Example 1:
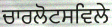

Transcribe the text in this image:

ਚਾਰਲੋਟਸਵਿਲੇ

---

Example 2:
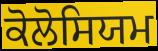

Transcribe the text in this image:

ਕੋਲੋਸਿਯਮ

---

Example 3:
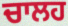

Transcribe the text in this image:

ਚਾਲਹ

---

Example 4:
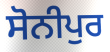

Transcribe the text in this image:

ਸੋਨੀਪੁਰ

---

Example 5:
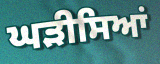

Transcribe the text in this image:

ਘੜੀਸਿਆਂ